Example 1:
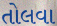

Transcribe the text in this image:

તોલવા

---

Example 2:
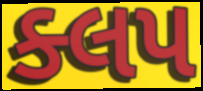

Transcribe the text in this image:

ક્લપ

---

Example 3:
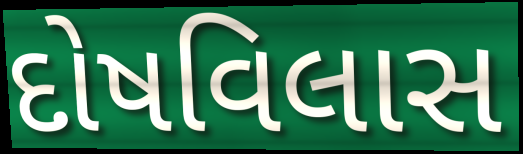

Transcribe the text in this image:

દોષવિલાસ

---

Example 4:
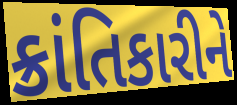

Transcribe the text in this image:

ક્રાંતિકારીને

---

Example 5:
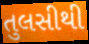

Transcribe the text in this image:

તુલસીથી